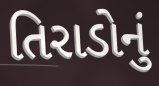
તિરાડોનું